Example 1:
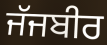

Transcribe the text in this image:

ਜੱਜਬੀਰ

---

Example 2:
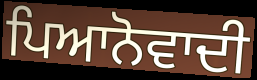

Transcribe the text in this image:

ਪਿਆਨੋਵਾਦੀ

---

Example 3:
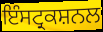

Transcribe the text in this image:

ਇੰਸਟ੍ਰਕਸ਼ਨਲ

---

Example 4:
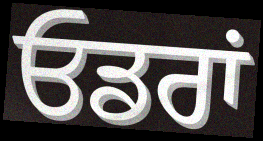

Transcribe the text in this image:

ਓਡਰਾਂ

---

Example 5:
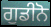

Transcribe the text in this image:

ਗੁਡੀਨੋ